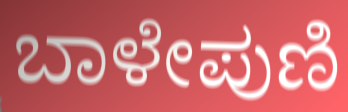
ಬಾಳೇಪುಣಿ